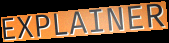
EXPLAINER